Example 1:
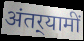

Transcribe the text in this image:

अंतर्यामीं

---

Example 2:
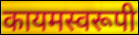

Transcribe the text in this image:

कायमस्वरूपी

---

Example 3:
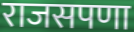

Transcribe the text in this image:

राजसपणा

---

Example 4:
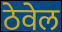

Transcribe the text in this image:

ठेवेल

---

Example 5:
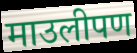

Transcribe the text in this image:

माउलीपण